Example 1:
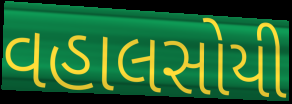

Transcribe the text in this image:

વહાલસોયી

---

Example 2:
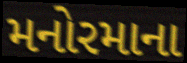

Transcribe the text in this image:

મનોરમાના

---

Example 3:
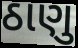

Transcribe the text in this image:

ઠાણુ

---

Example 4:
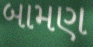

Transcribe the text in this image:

બામણ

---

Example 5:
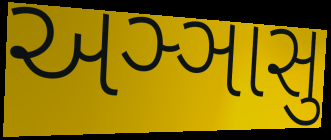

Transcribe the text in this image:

અઞ્ઞાસુ